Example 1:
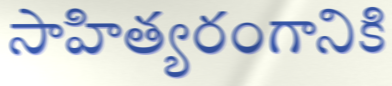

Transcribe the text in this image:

సాహిత్యరంగానికి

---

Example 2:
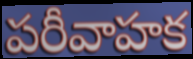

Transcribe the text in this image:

పరీవాహక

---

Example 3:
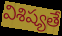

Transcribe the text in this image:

విశిష్యతే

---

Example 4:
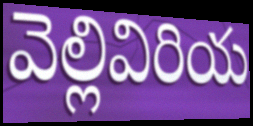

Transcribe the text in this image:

వెల్లివిరియ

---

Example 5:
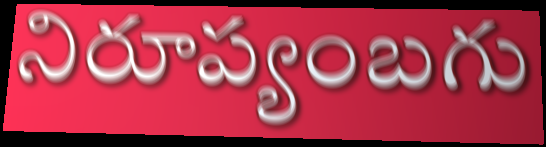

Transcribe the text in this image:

నిరూప్యంబగు